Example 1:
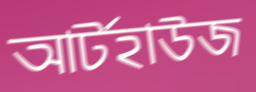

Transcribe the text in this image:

আর্টহাউজ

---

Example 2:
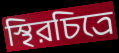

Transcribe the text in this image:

স্থিরচিত্রে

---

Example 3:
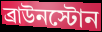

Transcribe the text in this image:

ব্রাউনস্টোন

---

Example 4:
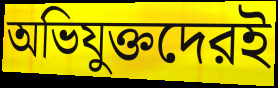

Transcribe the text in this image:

অভিযুক্তদেরই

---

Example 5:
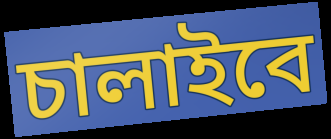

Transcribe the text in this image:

চালাইবে